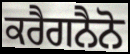
ਕਰੈਗਨੈਨੋ